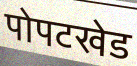
पोपटखेड